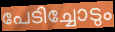
പേടിച്ചോടും